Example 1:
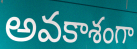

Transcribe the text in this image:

అవకాశంగా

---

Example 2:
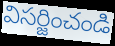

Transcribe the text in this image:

విసర్జించండి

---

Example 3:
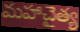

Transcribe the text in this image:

మహాచైత్య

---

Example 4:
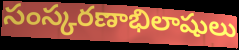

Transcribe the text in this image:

సంస్కరణాభిలాషులు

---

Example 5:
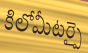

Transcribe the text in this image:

కిలోమీటర్పై